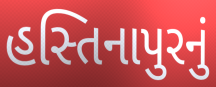
હસ્તિનાપુરનું